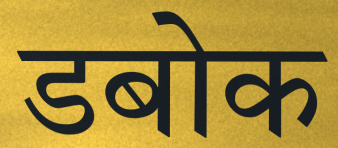
डबोक